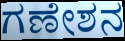
ಗಣೇಶನ